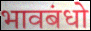
भावबंधो